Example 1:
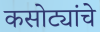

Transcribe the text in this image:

कसोट्यांचे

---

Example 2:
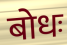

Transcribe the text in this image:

बोधः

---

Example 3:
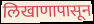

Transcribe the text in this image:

लिखाणापासून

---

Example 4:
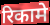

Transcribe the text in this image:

रिकामे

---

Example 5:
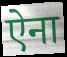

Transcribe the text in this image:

ऐना